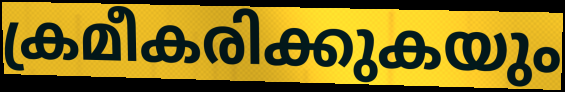
ക്രമീകരിക്കുകയും